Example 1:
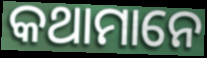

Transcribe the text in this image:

କଥାମାନେ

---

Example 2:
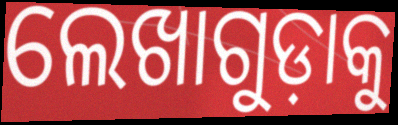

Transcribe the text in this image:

ଲେଖାଗୁଡ଼ାକୁ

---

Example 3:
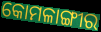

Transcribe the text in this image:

କୋମଳାଙ୍ଗୀର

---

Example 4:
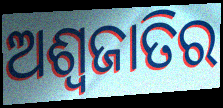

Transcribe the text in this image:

ଅଶ୍ୱଜାତିର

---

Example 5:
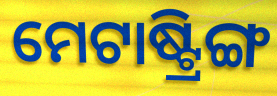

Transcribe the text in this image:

ମେଟାଷ୍ଟ୍ରିଙ୍ଗ